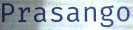
Prasango